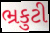
ભ્રકુટી